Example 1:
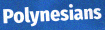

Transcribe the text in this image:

Polynesians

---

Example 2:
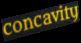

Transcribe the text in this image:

concavity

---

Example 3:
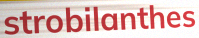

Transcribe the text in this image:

strobilanthes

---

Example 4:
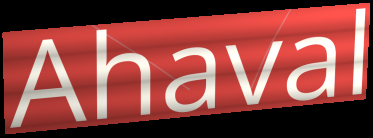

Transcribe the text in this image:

Ahaval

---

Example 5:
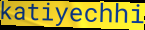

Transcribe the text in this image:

katiyechhi